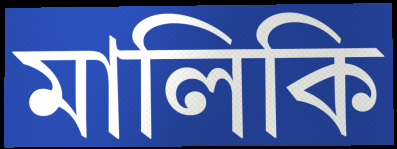
মালিকি